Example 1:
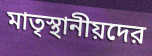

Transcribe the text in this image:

মাতৃস্থানীয়দের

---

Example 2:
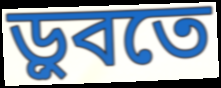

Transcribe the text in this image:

ড়ুবতে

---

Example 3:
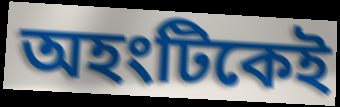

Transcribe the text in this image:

অহংটিকেই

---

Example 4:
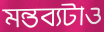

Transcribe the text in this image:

মন্তব্যটাও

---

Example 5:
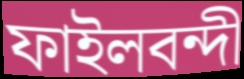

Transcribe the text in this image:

ফাইলবন্দী